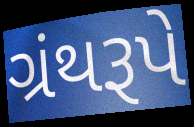
ગ્રંથરૂપે